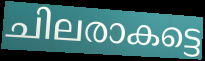
ചിലരാകട്ടെ